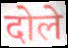
दोले